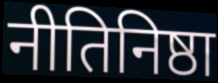
नीतिनिष्ठा